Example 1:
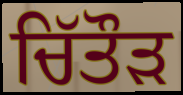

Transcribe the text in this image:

ਚਿੱਤੌੜ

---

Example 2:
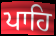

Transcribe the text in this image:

ਪਾਹਿ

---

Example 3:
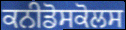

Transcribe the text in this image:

ਕਨੀਡੋਸਕੋਲਸ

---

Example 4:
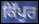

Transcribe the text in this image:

ਕਿੱਪੁਰ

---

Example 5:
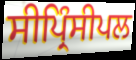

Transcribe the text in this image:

ਸੀਪ੍ਰਿੰਸੀਪਲ